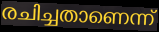
രചിച്ചതാണെന്ന്